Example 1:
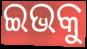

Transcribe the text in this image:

ଇଭକୁ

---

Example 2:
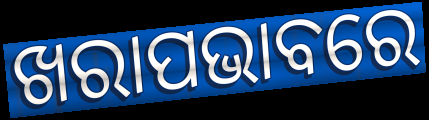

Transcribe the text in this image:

ଖରାପଭାବରେ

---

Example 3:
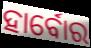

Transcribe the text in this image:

ହାର୍ବୋର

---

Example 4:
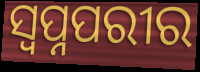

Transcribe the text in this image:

ସ୍ୱପ୍ନପରୀର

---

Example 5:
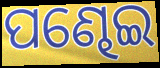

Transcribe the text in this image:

ପଣ୍ଢେଇ